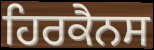
ਹਿਰਕੈਨਸ